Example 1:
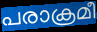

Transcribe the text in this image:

പരാക്രമീ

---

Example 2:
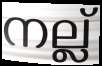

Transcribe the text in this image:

നല്ല്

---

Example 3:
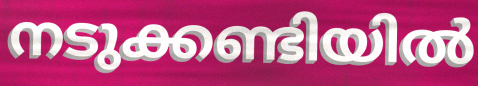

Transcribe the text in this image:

നടുക്കണ്ടിയിൽ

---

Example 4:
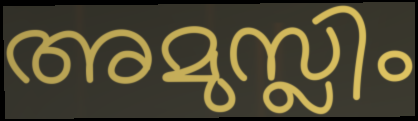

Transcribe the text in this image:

അമുസ്ലിം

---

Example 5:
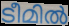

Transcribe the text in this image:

ടീമിൽ